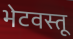
भेटवस्तू